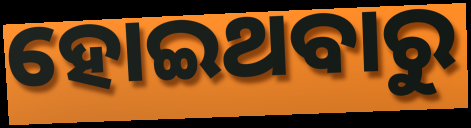
ହୋଇଥବାରୁ